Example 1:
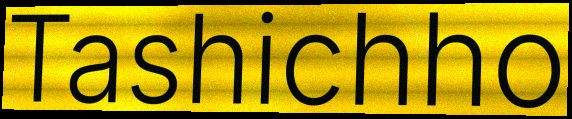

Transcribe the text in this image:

Tashichho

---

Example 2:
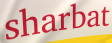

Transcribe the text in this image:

sharbat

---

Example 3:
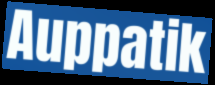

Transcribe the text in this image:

Auppatik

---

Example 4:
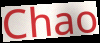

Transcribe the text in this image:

Chao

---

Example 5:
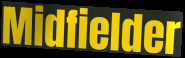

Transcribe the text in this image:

Midfielder